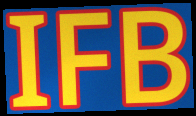
IFB